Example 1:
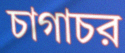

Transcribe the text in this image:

চাগাচর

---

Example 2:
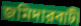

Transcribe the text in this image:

জমিদারবাটী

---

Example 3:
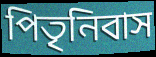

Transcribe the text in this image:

পিতৃনিবাস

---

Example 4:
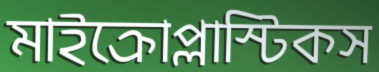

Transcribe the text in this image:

মাইক্রোপ্লাস্টিকস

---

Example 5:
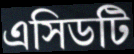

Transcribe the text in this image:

এসিডটি